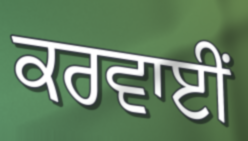
ਕਰਵਾਈਂ